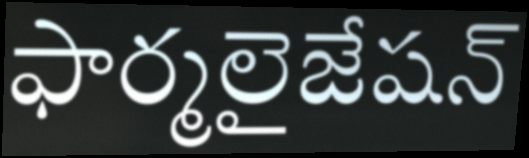
ఫార్మలైజేషన్